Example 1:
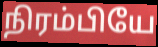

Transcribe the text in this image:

நிரம்பியே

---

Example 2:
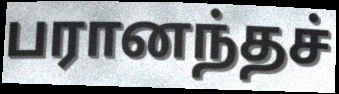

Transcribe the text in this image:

பரானந்தச்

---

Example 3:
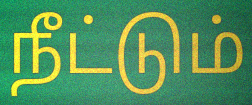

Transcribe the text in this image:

நீட்டும்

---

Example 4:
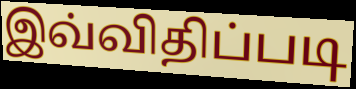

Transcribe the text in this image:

இவ்விதிப்படி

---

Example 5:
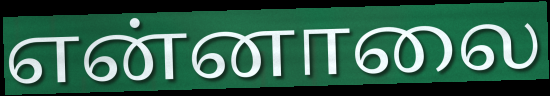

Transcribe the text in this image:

என்னாலை